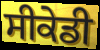
ਸੀਕੇਡੀ